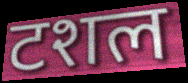
टशल